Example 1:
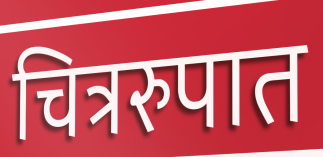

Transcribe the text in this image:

चित्ररुपात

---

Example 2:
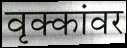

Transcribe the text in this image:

वृक्कांवर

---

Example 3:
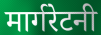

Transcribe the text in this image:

मार्गरेटनी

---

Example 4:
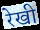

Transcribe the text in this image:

रेखी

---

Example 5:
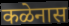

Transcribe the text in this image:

कळेनास